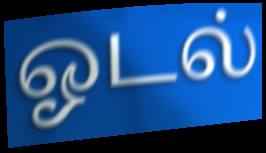
ஓடல்